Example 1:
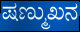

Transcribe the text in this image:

ಷಣ್ಮುಖನ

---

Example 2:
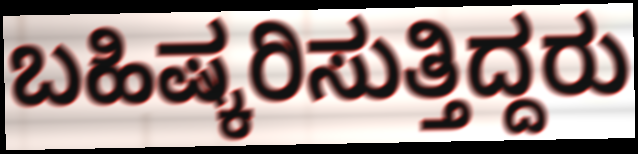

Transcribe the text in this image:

ಬಹಿಷ್ಕರಿಸುತ್ತಿದ್ದರು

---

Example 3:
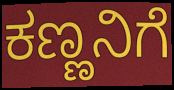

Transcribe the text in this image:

ಕಣ್ಣನಿಗೆ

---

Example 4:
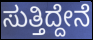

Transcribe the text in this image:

ಸುತ್ತಿದ್ದೇನೆ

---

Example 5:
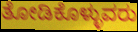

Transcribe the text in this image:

ತೋಡಿಕೊಳ್ಳುವರು